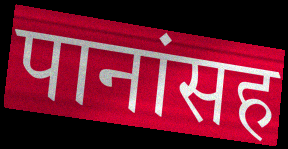
पानांसह